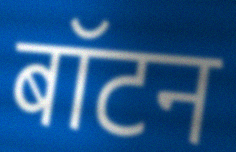
बॉटन